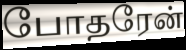
போதரேன்